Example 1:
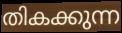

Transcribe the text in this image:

തികക്കുന്ന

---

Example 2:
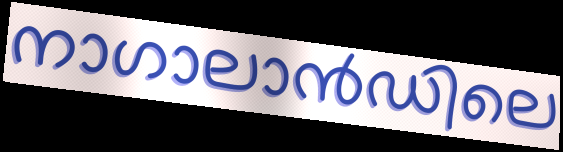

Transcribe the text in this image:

നാഗാലാൻഡിലെ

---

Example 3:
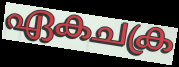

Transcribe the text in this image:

ഏകചക്ര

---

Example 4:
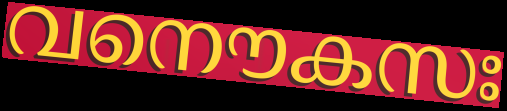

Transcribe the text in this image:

വനൌകസഃ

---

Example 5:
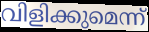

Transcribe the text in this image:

വിളിക്കുമെന്ന്